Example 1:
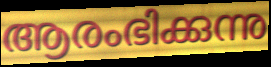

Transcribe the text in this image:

ആരംഭിക്കുന്നു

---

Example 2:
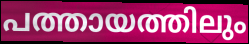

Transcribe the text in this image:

പത്തായത്തിലും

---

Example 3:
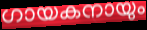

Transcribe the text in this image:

ഗായകനായും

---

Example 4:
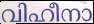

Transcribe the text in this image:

വിഹീനാ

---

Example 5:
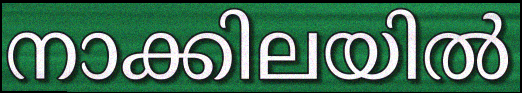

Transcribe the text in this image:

നാക്കിലയിൽ